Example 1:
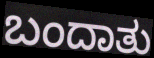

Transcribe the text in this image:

ಬಂದಾತು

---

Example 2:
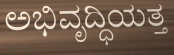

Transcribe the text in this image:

ಅಭಿವೃದ್ಧಿಯತ್ತ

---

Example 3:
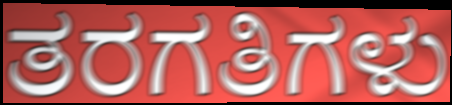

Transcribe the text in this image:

ತರಗತಿಗಳು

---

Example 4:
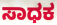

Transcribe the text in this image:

ಸಾಧಕ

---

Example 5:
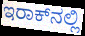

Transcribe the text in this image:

ಇರಾಕ್‌ನಲ್ಲಿ